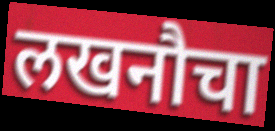
लखनौचा